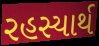
રહસ્યાર્થ